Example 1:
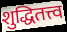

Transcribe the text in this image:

शुद्धितत्त्व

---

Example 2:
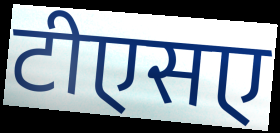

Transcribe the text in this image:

टीएसए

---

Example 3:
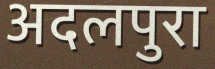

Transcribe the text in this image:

अदलपुरा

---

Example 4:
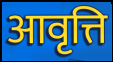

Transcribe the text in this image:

आवृत्ति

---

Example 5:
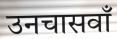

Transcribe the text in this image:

उनचासवाँ